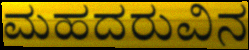
ಮಹದರುವಿನ